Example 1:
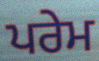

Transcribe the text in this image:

ਪਰੇਮ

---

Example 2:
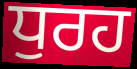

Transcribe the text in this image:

ਧੁਰਹ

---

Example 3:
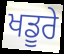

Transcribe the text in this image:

ਖਡੂਰੇ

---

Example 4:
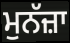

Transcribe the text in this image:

ਮੁਨੱਜ਼ਾ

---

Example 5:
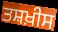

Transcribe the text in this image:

ਤਸ਼ਖ਼ੀਸ